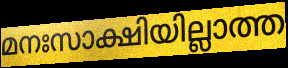
മനഃസാക്ഷിയില്ലാത്ത